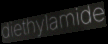
diethylamide